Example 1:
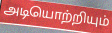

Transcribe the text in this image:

அடியொற்றியும்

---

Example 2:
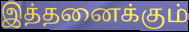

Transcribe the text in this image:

இத்தனைக்கும்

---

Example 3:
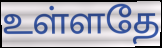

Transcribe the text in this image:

உள்ளதே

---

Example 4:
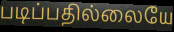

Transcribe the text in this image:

படிப்பதில்லையே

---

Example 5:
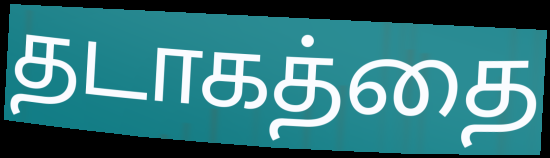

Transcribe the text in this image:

தடாகத்தை